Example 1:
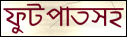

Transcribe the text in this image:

ফুটপাতসহ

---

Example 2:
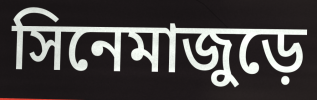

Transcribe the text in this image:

সিনেমাজুড়ে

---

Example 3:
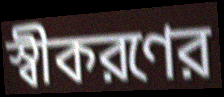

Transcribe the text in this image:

স্বীকরণের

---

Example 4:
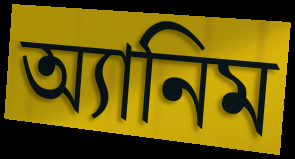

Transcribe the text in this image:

অ্যানিম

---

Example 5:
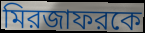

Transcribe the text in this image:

মিরজাফরকে